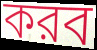
করব